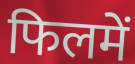
फिलमें